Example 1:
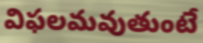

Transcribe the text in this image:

విఫలమవుతుంటే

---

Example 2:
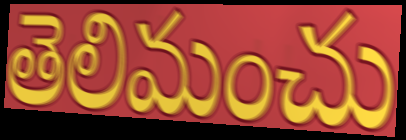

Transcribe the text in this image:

తెలిమంచు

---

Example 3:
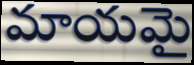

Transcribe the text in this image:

మాయమై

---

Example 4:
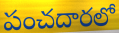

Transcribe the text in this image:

పంచదారలో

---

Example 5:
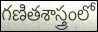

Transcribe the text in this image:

గణితశాస్త్రంలో